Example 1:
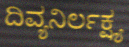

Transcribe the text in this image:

ದಿವ್ಯನಿರ್ಲಕ್ಷ್ಯ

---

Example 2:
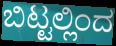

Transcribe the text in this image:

ಬಿಟ್ಟಲ್ಲಿಂದ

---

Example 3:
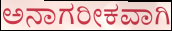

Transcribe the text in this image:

ಅನಾಗರೀಕವಾಗಿ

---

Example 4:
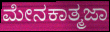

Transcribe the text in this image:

ಮೇನಕಾತ್ಮಜಾ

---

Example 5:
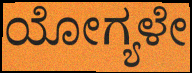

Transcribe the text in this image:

ಯೋಗ್ಯಳೇ